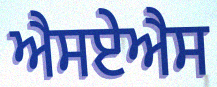
ਐਸਏਐਸ